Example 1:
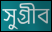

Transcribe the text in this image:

সুগ্রীব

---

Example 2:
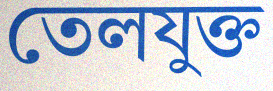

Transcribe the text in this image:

তেলযুক্ত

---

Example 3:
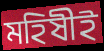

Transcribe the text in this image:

মহিষীই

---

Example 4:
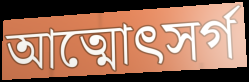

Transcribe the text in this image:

আত্মোৎসর্গ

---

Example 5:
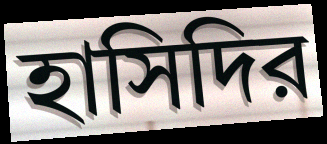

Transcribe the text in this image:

হাসিদির